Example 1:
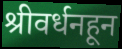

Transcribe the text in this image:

श्रीवर्धनहून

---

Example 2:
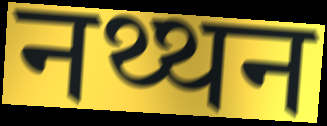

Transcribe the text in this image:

नथ्थन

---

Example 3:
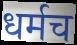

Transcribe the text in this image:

धर्मच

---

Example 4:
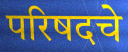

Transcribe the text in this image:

परिषदचे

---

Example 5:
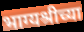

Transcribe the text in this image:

भाग्यश्रीच्या